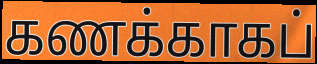
கணக்காகப்